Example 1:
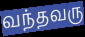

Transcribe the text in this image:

வந்தவரு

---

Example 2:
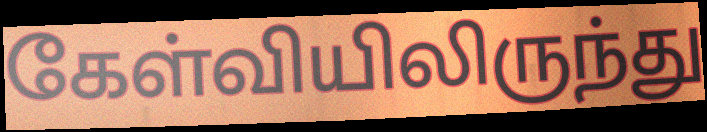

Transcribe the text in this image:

கேள்வியிலிருந்து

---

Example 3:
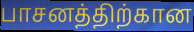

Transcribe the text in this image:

பாசனத்திற்கான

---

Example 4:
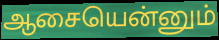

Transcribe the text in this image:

ஆசையென்னும்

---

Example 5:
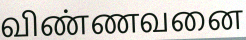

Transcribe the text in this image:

விண்ணவனை